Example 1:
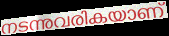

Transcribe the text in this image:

നടന്നുവരികയാണ്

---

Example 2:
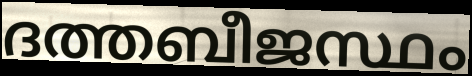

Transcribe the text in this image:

ദത്തബീജസ്ഥം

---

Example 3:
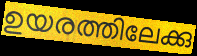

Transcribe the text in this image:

ഉയരത്തിലേക്കു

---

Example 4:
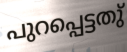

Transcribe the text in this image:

പുറപ്പെട്ടതു്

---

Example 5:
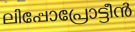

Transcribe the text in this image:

ലിപ്പോപ്രോട്ടീൻ